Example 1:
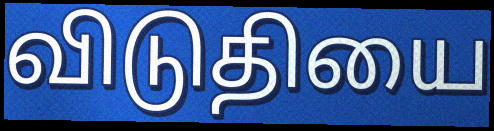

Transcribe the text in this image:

விடுதியை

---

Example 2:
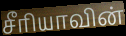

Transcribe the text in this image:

சீரியாவின்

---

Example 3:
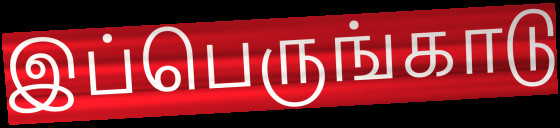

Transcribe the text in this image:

இப்பெருங்காடு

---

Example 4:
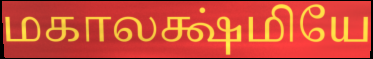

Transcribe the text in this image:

மகாலக்ஷ்மியே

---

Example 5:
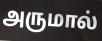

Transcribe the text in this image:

அருமால்